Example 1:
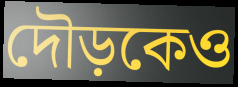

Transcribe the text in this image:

দৌড়কেও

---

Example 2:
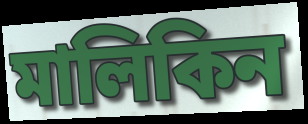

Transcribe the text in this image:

মালিকিন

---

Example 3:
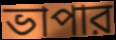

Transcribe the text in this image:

ভাপার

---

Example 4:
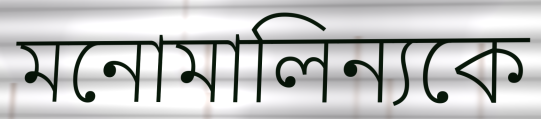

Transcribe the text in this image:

মনোমালিন্যকে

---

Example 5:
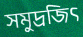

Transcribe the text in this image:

সমুদ্রজিৎ